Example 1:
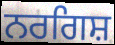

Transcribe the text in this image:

ਨਰਗਿਸ਼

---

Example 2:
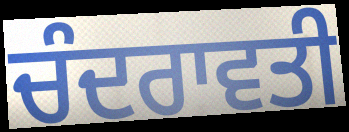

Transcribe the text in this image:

ਚੰਦਰਾਵਤੀ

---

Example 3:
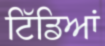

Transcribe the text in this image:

ਟਿੱਡਿਆਂ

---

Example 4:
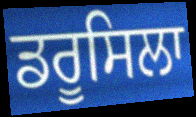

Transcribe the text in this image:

ਡਰੂਸਿਲਾ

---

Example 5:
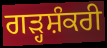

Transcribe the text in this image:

ਗੜ੍ਹਸ਼ੰਕਰੀ